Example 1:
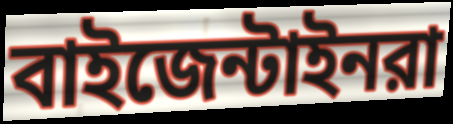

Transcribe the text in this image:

বাইজেন্টাইনরা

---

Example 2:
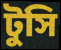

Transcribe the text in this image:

টুসি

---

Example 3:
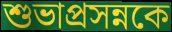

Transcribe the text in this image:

শুভাপ্রসন্নকে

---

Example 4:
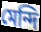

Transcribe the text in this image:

মেন্দি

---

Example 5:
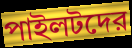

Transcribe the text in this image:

পাইলটদের